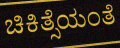
ಚಿಕಿತ್ಸೆಯಂತೆ